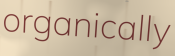
organically